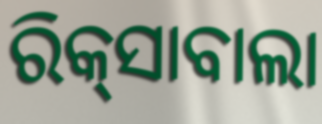
ରିକ୍‌ସାବାଲା